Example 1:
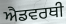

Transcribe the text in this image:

ਐਡਵਰਥੀ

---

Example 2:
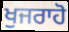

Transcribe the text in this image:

ਖੁਜਰਾਹੋ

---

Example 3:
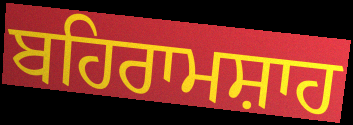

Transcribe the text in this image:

ਬਹਿਰਾਮਸ਼ਾਹ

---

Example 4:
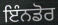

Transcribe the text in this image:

ਇੰਨਡੋਰ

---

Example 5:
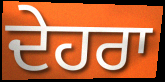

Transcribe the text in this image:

ਦੇਹਰਾ